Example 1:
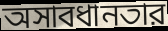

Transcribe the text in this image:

অসাবধানতার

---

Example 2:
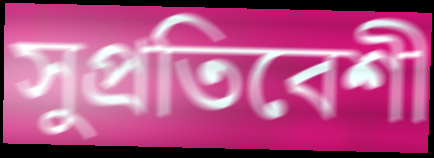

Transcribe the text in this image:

সুপ্রতিবেশী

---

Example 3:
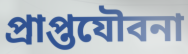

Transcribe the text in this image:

প্রাপ্তযৌবনা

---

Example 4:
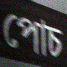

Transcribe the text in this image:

পোচ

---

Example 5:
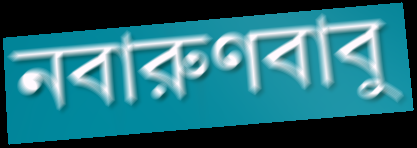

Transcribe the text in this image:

নবারুণবাবু